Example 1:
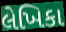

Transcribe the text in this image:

લેખિકા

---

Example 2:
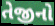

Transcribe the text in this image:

તેજીનો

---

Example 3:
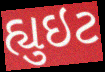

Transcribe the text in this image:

હ્યુઇટ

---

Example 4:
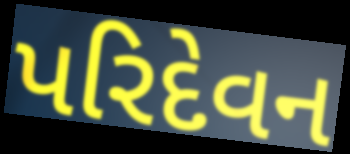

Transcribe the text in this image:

પરિદેવન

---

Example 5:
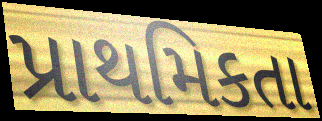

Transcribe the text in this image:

પ્રાથમિકતા